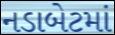
નડાબેટમાં